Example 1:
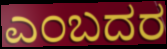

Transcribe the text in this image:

ಎಂಬದರ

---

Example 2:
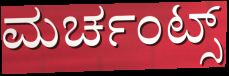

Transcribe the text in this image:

ಮರ್ಚಂಟ್ಸ್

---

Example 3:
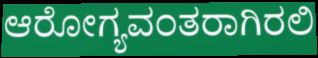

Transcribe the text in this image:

ಆರೋಗ್ಯವಂತರಾಗಿರಲಿ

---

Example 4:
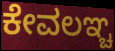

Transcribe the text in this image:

ಕೇವಲಞ್ಚ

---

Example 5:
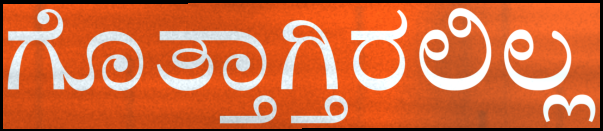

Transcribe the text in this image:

ಗೊತ್ತಾಗ್ತಿರಲಿಲ್ಲ